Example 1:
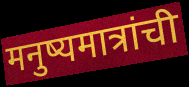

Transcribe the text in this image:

मनुष्यमात्रांची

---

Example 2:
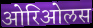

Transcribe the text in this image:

ओरिओलस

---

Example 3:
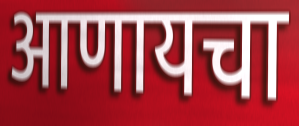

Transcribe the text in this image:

आणायचा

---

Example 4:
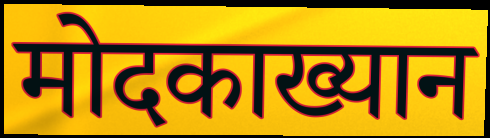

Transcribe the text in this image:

मोदकाख्यान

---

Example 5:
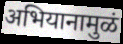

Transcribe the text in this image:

अभियानामुळं